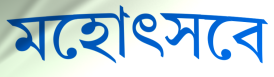
মহোৎসবে